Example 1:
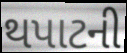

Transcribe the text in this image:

થપાટની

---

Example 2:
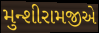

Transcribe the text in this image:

મુન્શીરામજીએ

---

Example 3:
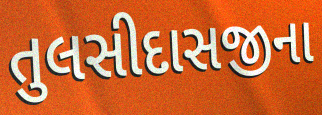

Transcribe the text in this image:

તુલસીદાસજીના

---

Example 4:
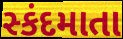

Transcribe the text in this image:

સ્કંદમાતા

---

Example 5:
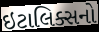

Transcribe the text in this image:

ઇટાલિક્સનો